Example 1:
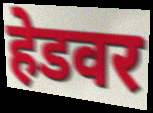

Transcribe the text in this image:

हेडवर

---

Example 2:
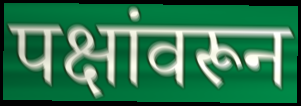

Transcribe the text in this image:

पक्षांवरून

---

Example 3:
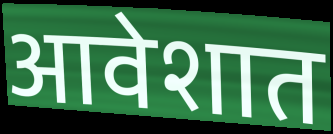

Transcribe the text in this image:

आवेशात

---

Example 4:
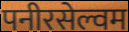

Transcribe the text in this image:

पनीरसेल्वम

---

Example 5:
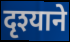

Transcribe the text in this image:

दृश्याने